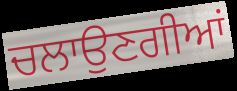
ਚਲਾਉਣਗੀਆਂ